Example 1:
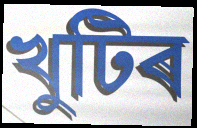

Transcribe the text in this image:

খুটিৰ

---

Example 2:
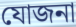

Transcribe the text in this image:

যোজনা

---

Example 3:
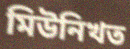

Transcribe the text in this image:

মিউনিখত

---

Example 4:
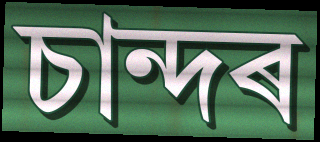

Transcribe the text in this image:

চান্দৰ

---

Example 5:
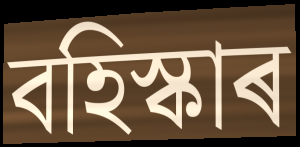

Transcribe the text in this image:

বহিস্কাৰ